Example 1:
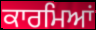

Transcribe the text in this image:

ਕਾਰਮਿਆਂ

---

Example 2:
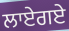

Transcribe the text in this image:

ਲਾਏਗਏ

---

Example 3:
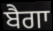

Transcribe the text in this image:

ਬੈਗਾ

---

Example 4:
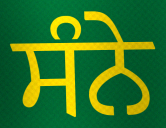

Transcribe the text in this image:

ਸੰਨੇ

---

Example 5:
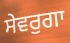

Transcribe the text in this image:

ਸੇਵਰੁਗਾ